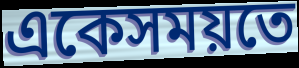
একেসময়তে